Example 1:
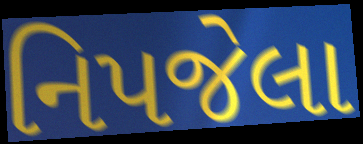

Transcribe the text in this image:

નિપજેલા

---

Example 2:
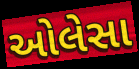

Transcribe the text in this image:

ઓલેસા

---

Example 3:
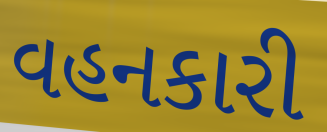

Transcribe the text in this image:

વહનકારી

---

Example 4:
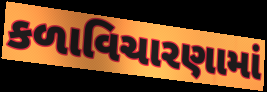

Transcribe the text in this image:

કળાવિચારણામાં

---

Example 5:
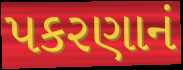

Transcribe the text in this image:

પકરણાનં